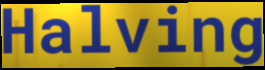
Halving